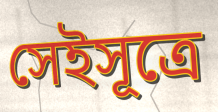
সেইসূত্রে